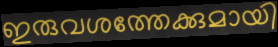
ഇരുവശത്തേക്കുമായി